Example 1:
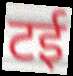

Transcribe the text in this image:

टई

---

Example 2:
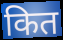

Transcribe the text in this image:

कित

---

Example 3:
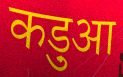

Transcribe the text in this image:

कड़ुआ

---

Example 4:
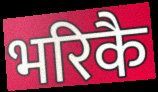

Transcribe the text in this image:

भरिकै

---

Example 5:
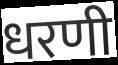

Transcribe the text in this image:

धरणी